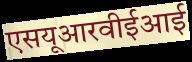
एसयूआरवीईआई